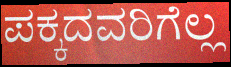
ಪಕ್ಕದವರಿಗೆಲ್ಲ